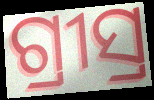
ଗ୍ରୀସ୍ର